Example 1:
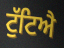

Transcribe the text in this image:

ਟੁੱਟਿਐ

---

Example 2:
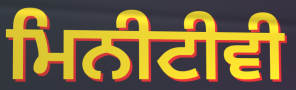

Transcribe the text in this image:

ਮਿਨੀਟੀਵੀ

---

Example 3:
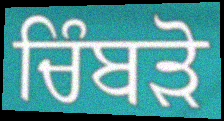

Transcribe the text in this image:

ਚਿੰਬੜੋ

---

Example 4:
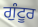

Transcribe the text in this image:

ਗੁੰਟੂਰ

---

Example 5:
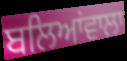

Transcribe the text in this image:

ਬਲਿਆਂਵਾਲਾ